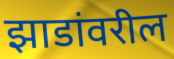
झाडांवरील